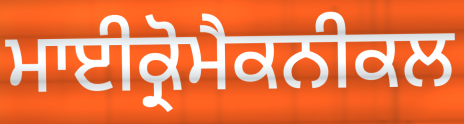
ਮਾਈਕ੍ਰੋਮੈਕਨੀਕਲ